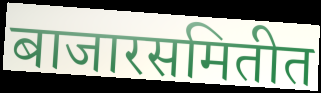
बाजारसमितीत